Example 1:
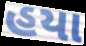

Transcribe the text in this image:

હયા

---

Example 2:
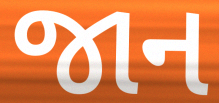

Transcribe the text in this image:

જાન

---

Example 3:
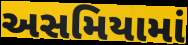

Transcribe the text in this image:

અસમિયામાં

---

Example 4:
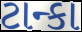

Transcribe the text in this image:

ટાન્કા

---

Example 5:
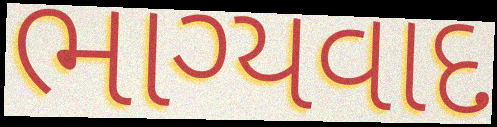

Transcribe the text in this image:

ભાગ્યવાદ